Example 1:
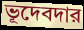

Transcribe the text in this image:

ভূদেবদার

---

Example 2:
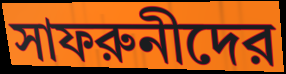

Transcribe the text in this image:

সাফরুনীদের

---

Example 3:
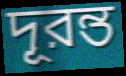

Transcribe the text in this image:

দূরন্ত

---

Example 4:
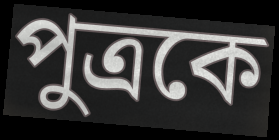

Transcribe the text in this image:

পুত্রকে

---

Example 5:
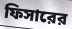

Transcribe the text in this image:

ফিসারের